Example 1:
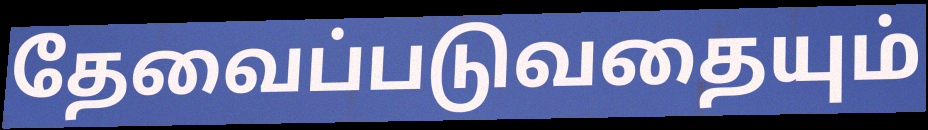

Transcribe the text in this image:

தேவைப்படுவதையும்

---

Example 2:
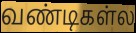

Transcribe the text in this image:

வண்டிகள்ல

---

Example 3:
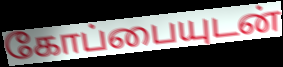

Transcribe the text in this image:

கோப்பையுடன்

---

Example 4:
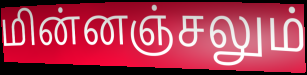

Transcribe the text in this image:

மின்னஞ்சலும்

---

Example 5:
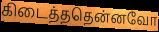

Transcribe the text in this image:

கிடைத்ததென்னவோ